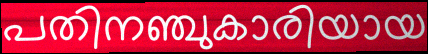
പതിനഞ്ചുകാരിയായ